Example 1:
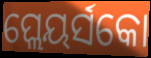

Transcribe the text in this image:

ପ୍ଲେୟର୍ସକୋ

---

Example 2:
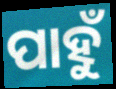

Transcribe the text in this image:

ପାହୁଁ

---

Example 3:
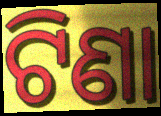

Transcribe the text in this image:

ଟିଣା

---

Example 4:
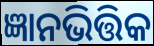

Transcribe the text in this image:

ଜ୍ଞାନଭିତ୍ତିକ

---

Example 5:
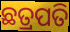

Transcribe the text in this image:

ଛତ୍ରପତି